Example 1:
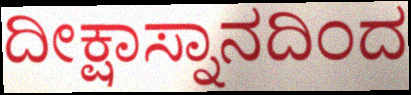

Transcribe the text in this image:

ದೀಕ್ಷಾಸ್ನಾನದಿಂದ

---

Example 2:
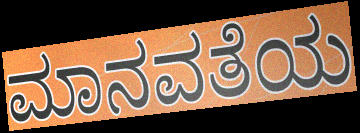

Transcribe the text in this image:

ಮಾನವತೆಯ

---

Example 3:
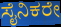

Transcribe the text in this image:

ಸೈನಿಕರೇ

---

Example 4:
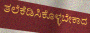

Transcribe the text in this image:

ತಲೆಕೆಡಿಸಿಕೊಳ್ಳಬೇಕಾದ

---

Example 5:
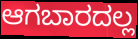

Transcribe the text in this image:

ಆಗಬಾರದಲ್ಲ